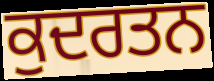
ਕੁਦਰਤਨ